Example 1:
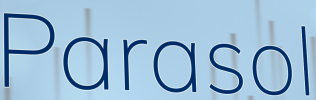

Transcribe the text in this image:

Parasol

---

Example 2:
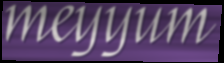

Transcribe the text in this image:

meyyum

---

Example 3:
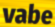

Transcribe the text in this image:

vabe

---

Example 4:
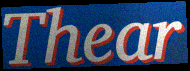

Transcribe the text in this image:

Thear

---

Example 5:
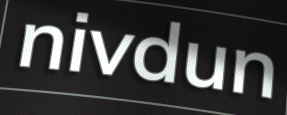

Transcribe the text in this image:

nivdun